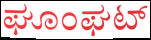
ಘೂಂಘಟ್